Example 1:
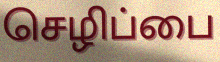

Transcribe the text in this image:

செழிப்பை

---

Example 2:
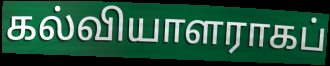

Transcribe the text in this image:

கல்வியாளராகப்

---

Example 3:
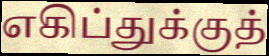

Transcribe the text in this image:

எகிப்துக்குத்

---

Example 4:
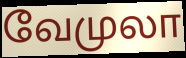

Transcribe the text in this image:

வேமுலா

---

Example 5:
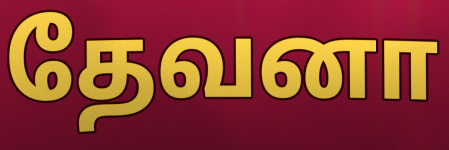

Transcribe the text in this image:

தேவனா